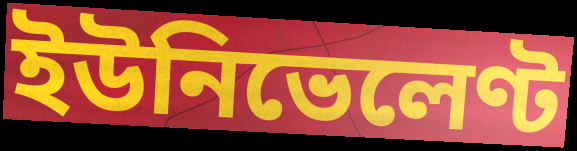
ইউনিভেলেণ্ট